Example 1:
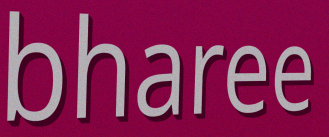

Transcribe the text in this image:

bharee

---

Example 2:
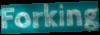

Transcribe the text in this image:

Forking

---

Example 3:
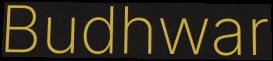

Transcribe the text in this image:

Budhwar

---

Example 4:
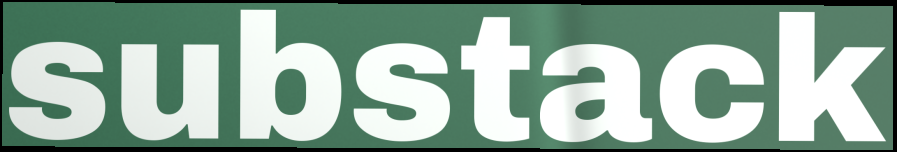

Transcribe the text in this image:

substack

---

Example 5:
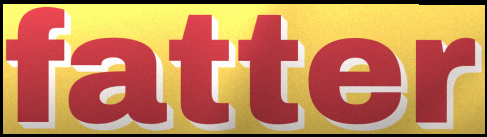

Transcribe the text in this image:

fatter